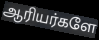
ஆரியர்களே